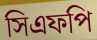
সিএফপি